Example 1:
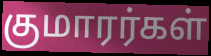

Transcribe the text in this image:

குமாரர்கள்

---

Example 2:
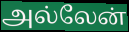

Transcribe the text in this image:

அல்லேன்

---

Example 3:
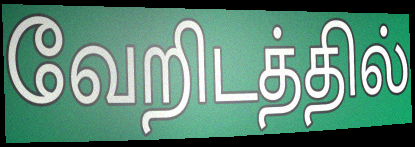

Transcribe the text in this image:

வேறிடத்தில்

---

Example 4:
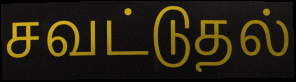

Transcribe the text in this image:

சவட்டுதல்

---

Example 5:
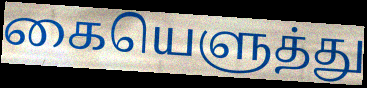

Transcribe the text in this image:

கையெளுத்து